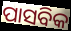
ପାସବିକ